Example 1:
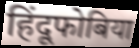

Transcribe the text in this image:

हिंदूफोबिया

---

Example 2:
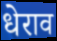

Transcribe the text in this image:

धेराव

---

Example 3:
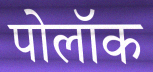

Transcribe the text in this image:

पोलॉक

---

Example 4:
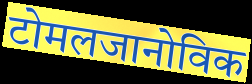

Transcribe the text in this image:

टोमलजानोविक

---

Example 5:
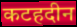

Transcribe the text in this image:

कटहदीन